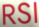
RSI